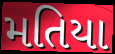
મતિયા